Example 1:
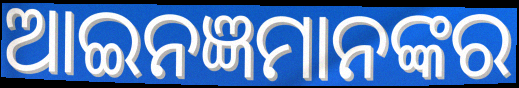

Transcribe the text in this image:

ଆଇନଜ୍ଞମାନଙ୍କର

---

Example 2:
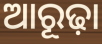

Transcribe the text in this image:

ଆରୂଢ଼ା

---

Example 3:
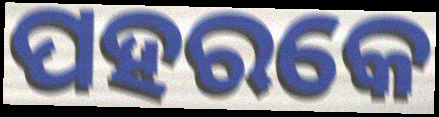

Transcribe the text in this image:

ପହରକେ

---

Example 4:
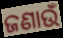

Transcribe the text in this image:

ଜଣାଉଁ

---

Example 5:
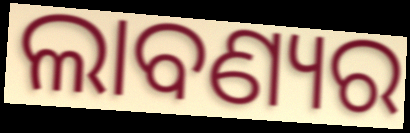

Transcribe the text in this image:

ଲାବଣ୍ୟର